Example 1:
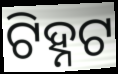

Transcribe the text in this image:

ଟିହ୍ନଟ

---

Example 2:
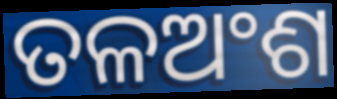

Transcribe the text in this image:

ତଳଅଂଶ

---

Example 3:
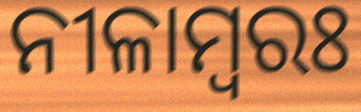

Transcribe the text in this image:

ନୀଳାମ୍ବରଃ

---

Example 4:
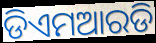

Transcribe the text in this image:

ଡିଏମଆରଡି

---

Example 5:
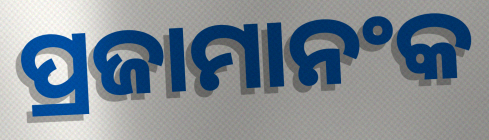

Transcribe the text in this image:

ପ୍ରଜାମାନଂକ